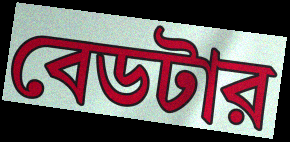
বেডটার